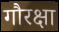
गौरक्षा